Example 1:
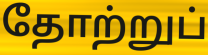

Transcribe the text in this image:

தோற்றுப்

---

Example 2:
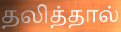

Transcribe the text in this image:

தலித்தால்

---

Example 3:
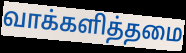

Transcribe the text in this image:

வாக்களித்தமை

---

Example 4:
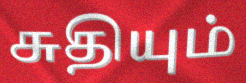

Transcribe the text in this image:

சுதியும்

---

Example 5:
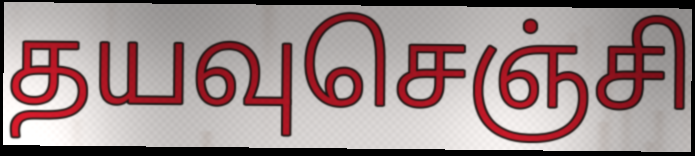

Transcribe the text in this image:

தயவுசெஞ்சி